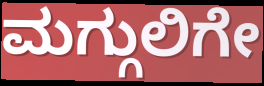
ಮಗ್ಗುಲಿಗೇ